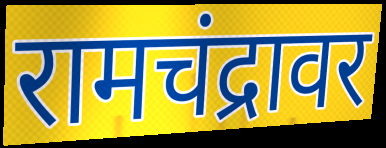
रामचंद्रावर